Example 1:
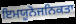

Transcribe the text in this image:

ਇਮਯੂਨੋਜਨਿਕਤਾ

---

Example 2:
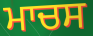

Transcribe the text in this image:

ਮਾਚਸ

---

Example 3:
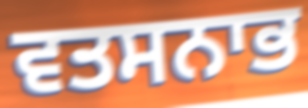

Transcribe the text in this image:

ਵਤਸਨਾਭ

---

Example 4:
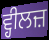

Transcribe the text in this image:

ਵ੍ਹੀਲਜ਼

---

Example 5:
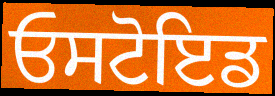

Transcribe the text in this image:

ਓਸਟੋਇਡ